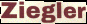
Ziegler